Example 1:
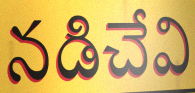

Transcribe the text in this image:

నడిచేవి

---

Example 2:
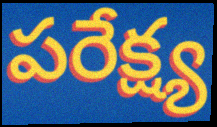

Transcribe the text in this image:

పరేక్ష్య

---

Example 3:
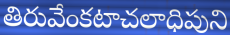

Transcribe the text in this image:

తిరువేంకటాచలాధిపుని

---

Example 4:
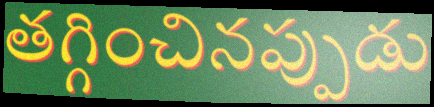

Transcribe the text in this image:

తగ్గించినప్పుడు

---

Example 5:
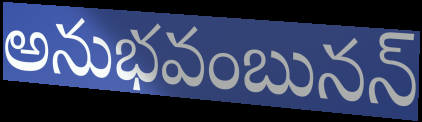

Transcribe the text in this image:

అనుభవంబునన్